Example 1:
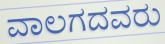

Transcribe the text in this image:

ವಾಲಗದವರು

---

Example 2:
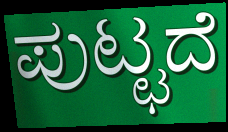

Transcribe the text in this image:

ಪುಟ್ಟದೆ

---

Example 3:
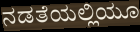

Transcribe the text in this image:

ನಡತೆಯಲ್ಲಿಯೂ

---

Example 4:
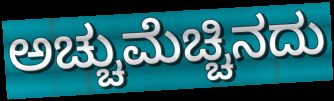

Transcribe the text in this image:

ಅಚ್ಚುಮೆಚ್ಚಿನದು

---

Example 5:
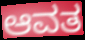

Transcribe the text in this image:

ಆವತ